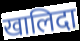
खालिदा